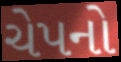
ચેપનો